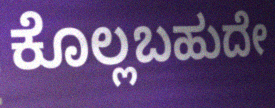
ಕೊಲ್ಲಬಹುದೇ